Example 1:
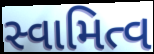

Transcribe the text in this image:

સ્વામિત્વ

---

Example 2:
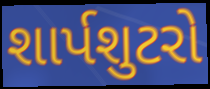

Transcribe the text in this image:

શાર્પશુટરો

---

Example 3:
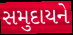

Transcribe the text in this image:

સમુદાયને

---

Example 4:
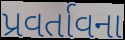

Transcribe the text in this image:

પ્રવર્તાવના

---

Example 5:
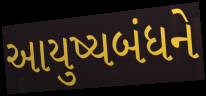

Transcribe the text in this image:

આયુષ્યબંધને